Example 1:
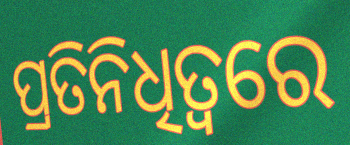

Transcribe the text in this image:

ପ୍ରତିନିଧିତ୍ବରେ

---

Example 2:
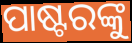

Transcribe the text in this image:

ପାଷ୍ଟରଙ୍କୁ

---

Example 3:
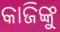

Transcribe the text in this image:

କାଜିଙ୍କୁ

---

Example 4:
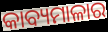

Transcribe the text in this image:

କାବ୍ୟମାଳାର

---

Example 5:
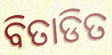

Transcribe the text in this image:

ବିତାଡିତ